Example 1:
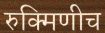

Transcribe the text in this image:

रुक्मिणीच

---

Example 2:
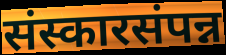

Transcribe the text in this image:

संस्कारसंपन्न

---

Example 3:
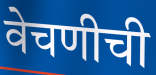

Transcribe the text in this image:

वेचणीची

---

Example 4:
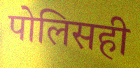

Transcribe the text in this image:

पोलिसही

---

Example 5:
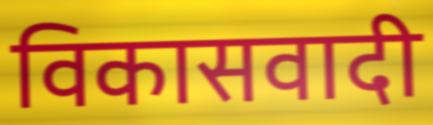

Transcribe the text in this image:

विकासवादी